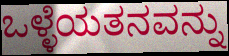
ಒಳ್ಳೆಯತನವನ್ನು